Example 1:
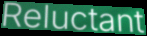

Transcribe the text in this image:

Reluctant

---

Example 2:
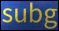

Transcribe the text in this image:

subg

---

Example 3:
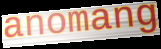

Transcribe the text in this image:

anomang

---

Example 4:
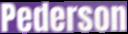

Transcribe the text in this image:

Pederson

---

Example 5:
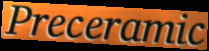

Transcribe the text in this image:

Preceramic